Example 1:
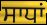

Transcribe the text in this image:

ਸਾਧਾਂ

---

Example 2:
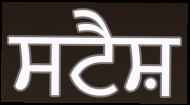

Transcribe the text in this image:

ਸਟੈਸ਼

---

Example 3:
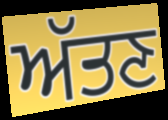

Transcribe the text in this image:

ਅੱਤਣ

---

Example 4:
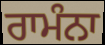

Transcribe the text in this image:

ਰਾਮੰਨਾ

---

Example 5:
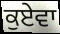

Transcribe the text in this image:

ਕੁਏਵਾ